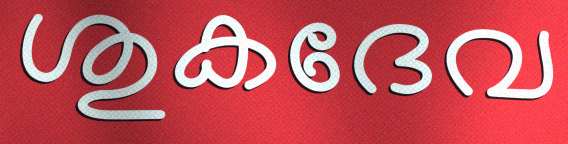
ശുകദേവ